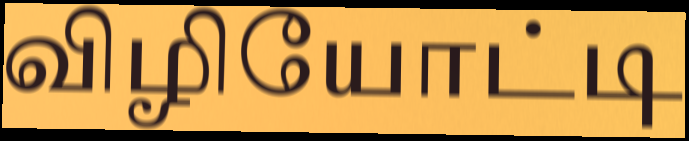
விழியோட்டி